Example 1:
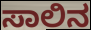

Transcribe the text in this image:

ಸಾಲಿನ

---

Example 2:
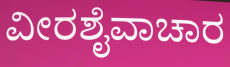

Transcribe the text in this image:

ವೀರಶೈವಾಚಾರ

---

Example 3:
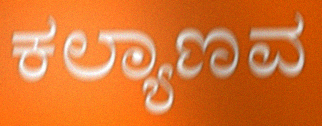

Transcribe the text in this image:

ಕಲ್ಯಾಣವ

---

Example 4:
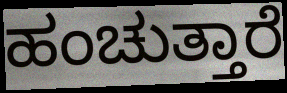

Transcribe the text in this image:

ಹಂಚುತ್ತಾರೆ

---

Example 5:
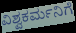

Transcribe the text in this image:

ವಿಶ್ವಕರ್ಮನಿಗೆ